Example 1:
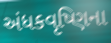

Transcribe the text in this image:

અંધકવૃષ્ણિના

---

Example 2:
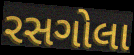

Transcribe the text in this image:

રસગોલા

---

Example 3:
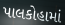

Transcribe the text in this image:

પાલકોહામાં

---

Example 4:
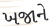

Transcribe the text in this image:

ખજાને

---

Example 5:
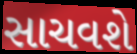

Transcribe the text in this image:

સાચવશે